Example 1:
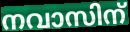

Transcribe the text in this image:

നവാസിന്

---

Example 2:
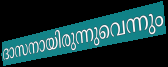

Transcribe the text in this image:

ദാസനായിരുന്നുവെന്നും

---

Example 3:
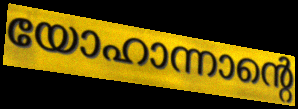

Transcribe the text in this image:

യോഹാന്നാന്റെ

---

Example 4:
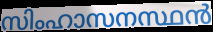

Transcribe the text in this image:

സിംഹാസനസ്ഥൻ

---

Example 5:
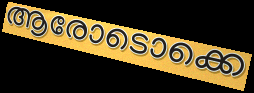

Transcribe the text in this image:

ആരോടൊക്കെ